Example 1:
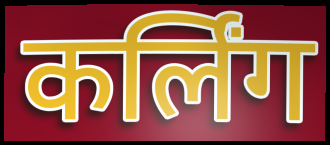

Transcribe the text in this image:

कर्लिंग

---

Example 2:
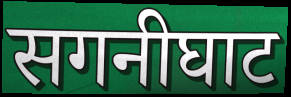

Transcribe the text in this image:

सगनीघाट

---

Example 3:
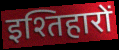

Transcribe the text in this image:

इश्तिहारों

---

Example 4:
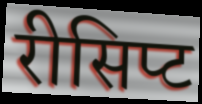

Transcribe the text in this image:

रीसिप्ट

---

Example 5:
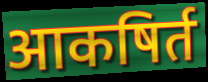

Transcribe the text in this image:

आकषिर्त